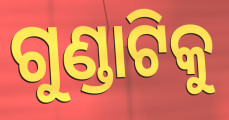
ଗୁଣ୍ଡାଟିକୁ